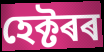
হেক্টৰৰ